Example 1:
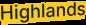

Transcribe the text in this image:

Highlands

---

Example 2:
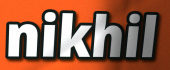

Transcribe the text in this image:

nikhil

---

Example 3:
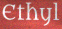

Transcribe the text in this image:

Ethyl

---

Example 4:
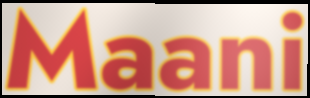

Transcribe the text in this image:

Maani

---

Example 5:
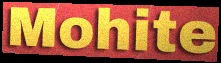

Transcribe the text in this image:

Mohite